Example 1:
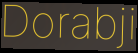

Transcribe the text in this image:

Dorabji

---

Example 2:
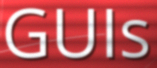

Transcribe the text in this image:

GUIs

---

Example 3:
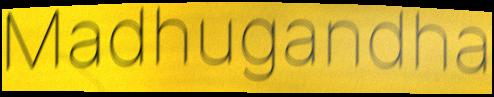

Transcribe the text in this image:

Madhugandha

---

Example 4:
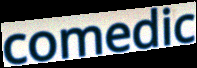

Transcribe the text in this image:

comedic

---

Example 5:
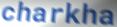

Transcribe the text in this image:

charkha